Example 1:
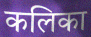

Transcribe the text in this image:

कलिका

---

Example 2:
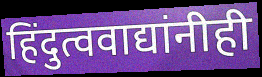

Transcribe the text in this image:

हिंदुत्ववाद्यांनीही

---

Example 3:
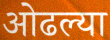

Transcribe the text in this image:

ओढल्या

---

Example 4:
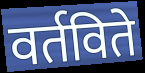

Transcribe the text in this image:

वर्तविते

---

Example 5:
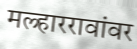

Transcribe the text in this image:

मल्हाररावांवर